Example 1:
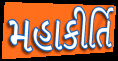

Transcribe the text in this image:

મહાકીર્તિ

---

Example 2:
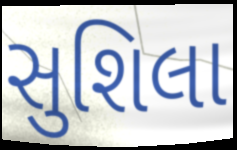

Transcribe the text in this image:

સુશિલા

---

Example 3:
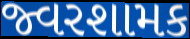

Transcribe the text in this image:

જ્વરશામક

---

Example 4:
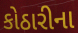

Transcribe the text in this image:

કોઠારીના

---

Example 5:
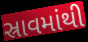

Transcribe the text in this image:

સ્રાવમાંથી